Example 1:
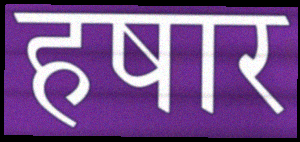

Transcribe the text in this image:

हषार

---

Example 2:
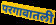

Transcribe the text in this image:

परगावातली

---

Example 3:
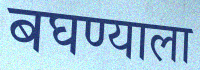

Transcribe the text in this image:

बघण्याला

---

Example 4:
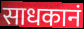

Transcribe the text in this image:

साधकानं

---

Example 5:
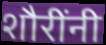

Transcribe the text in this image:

शौरींनी